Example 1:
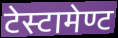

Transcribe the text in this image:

टेस्टामेण्ट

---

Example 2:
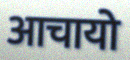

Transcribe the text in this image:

आचायो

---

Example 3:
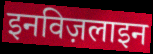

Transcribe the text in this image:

इनविज़लाइन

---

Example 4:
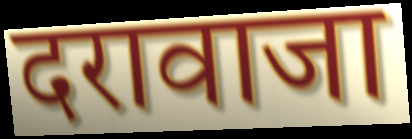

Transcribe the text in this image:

दरावाजा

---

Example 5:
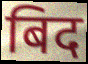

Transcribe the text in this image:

बिद